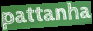
pattanha